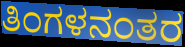
ತಿಂಗಳನಂತರ